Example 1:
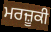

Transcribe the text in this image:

ਮਰਜ਼ੂਕੀ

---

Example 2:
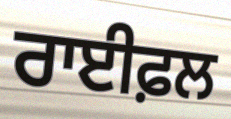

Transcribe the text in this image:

ਰਾਈਫ਼ਲ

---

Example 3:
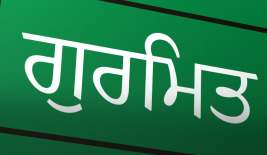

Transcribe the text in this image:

ਗੁਰਮਿਤ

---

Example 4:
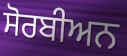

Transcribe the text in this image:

ਸੋਰਬੀਅਨ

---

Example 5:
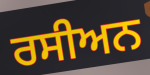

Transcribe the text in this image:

ਰਸੀਅਨ